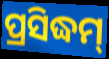
ପ୍ରସିଦ୍ଧମ୍